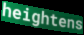
heightens